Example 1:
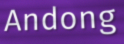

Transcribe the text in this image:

Andong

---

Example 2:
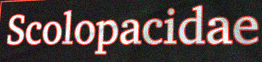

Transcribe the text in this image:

Scolopacidae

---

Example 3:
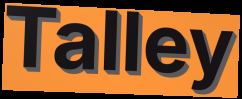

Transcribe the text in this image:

Talley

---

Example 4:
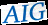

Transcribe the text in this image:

AIG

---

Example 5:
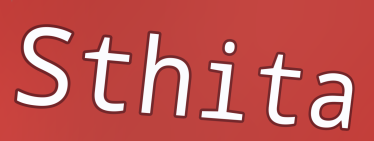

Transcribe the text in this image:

Sthita